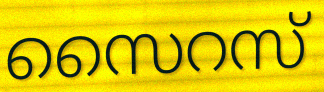
സൈറസ്